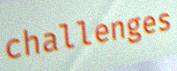
challenges